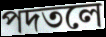
পদতলে